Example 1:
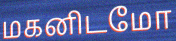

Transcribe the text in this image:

மகனிடமோ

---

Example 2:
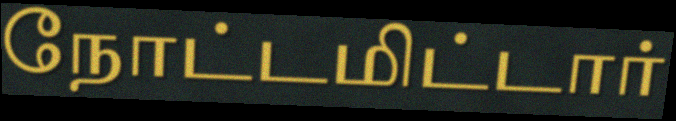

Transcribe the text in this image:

நோட்டமிட்டார்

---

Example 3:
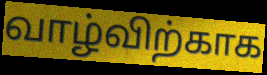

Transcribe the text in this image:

வாழ்விற்காக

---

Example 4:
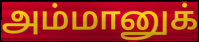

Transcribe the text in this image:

அம்மானுக்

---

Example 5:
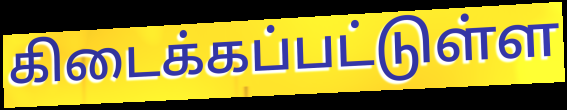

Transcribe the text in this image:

கிடைக்கப்பட்டுள்ள